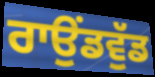
ਰਾਉਂਡਵੁੱਡ